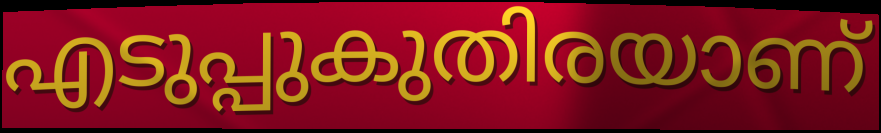
എടുപ്പുകുതിരയാണ്